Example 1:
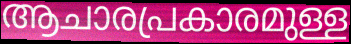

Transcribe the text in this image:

ആചാരപ്രകാരമുള്ള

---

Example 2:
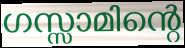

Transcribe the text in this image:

ഗസ്സാമിന്റെ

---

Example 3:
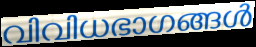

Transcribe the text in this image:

വിവിധഭാഗങ്ങൾ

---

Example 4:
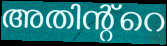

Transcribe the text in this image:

അതിന്റ്റെ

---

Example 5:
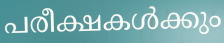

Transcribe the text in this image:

പരീക്ഷകൾക്കും